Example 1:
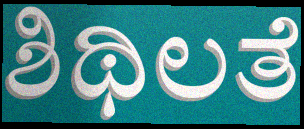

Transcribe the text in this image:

ಶಿಥಿಲತೆ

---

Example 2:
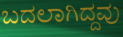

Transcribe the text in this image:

ಬದಲಾಗಿದ್ದವು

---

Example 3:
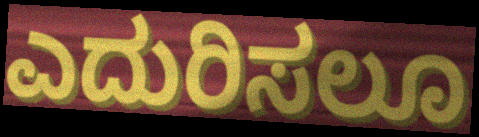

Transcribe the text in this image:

ಎದುರಿಸಲೂ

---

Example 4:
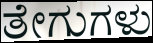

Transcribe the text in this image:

ತೇಗುಗಳು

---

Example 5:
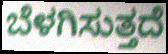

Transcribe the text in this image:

ಬೆಳಗಿಸುತ್ತದೆ